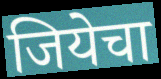
जियेचा